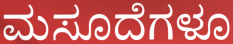
ಮಸೂದೆಗಳೂ